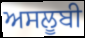
ਅਸਲੂਬੀ